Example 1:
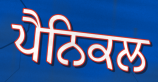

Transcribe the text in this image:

ਪੈਨਿਕਲ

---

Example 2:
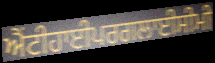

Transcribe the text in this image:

ਐਂਟੀਹਾਈਪਰਗਲਾਈਸੀਮੀ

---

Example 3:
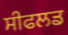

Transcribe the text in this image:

ਸੀਫਲਡ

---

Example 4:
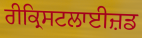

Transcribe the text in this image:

ਰੀਕ੍ਰਿਸਟਲਾਈਜ਼ਡ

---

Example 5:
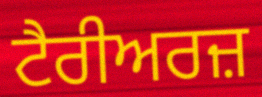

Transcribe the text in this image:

ਟੈਰੀਅਰਜ਼